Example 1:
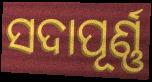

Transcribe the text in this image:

ସଦାପୂର୍ଣ୍ଣ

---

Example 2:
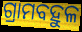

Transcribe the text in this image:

ଗ୍ରାମବହୁଳ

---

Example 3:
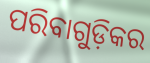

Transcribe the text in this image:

ପରିବାଗୁଡ଼ିକର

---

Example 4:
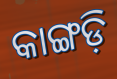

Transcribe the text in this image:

କାଙ୍ଗଡ଼ି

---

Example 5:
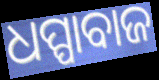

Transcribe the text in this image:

ଧପ୍ପାବାଜ